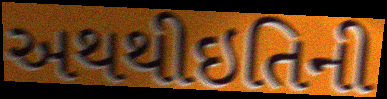
અથથીઇતિની